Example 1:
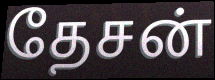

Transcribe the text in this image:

தேசன்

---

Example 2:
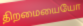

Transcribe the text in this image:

திறமையையோ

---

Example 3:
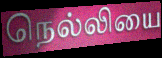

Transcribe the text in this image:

நெல்லியை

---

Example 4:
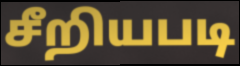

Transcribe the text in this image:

சீறியபடி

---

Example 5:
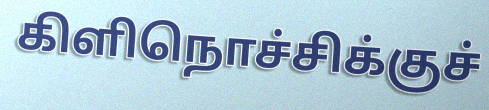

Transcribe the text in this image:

கிளிநொச்சிக்குச்